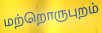
மற்றொருபுறம்